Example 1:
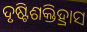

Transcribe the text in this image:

ଦୃଷ୍ଟିଶକ୍ତିହ୍ରାସ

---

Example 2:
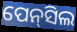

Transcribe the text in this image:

ପେନ୍‍ସିଲ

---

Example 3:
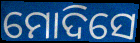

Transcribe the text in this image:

ମୋଦିସେ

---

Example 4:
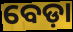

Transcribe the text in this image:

ବେଡ଼ା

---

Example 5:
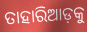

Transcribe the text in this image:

ତାହାରିଆଡ଼କୁ